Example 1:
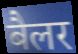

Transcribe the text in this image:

बैलर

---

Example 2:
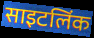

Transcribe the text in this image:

साइटलिंक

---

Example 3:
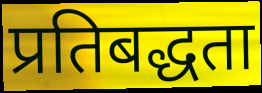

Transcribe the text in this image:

प्रतिबद्धता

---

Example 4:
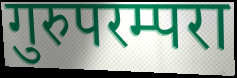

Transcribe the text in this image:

गुरुपरम्परा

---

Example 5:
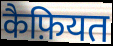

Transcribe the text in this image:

कैफ़ियत